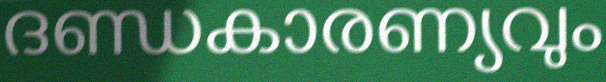
ദണ്ഡകാരണ്യവും